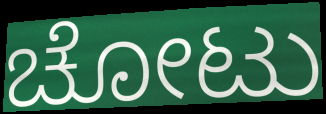
ಚೋಟು